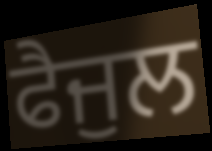
ਫੈਜੁਲ